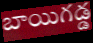
బాయిగడ్డ